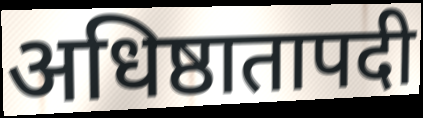
अधिष्ठातापदी